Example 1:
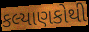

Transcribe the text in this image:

કલ્યાણકોથી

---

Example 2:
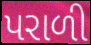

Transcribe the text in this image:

પરાળી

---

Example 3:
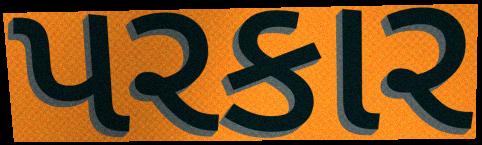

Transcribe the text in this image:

પરકાર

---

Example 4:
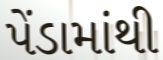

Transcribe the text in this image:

પેંડામાંથી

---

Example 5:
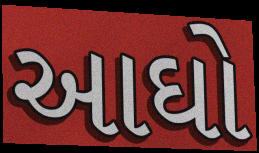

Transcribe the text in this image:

આઘો